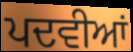
ਪਦਵੀਆਂ